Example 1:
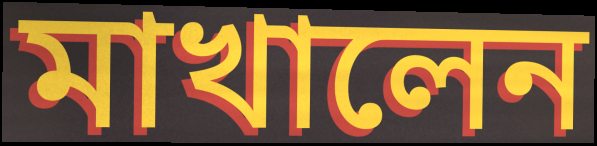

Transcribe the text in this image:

মাখালেন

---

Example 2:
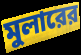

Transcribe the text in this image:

মুলারের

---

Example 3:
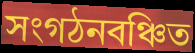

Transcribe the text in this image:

সংগঠনবঞ্চিত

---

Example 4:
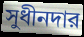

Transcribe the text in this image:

সুধীনদার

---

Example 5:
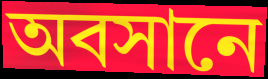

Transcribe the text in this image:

অবসানে